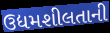
ઉદ્યમશીલતાની